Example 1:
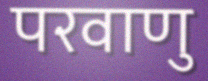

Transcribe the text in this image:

परवाणु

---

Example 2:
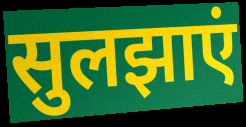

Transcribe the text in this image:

सुलझाएं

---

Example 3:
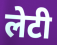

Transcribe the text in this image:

लेटी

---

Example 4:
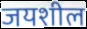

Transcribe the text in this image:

जयशील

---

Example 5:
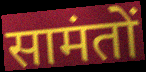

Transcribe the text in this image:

सामंतों